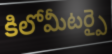
కిలోమీటర్పై